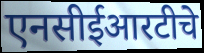
एनसीईआरटीचे